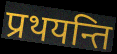
प्रथयन्ति